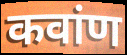
कवांण